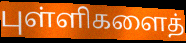
புள்ளிகளைத்